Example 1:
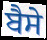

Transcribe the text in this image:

ਬੈਸੇ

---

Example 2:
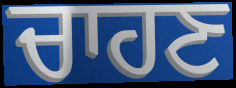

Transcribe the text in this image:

ਚਾਹਣ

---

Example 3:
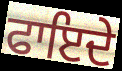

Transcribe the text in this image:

ਫਾਇਦੇ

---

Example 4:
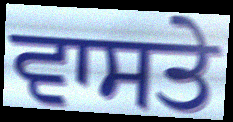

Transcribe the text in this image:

ਵਾਸਤੇ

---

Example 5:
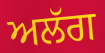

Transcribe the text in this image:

ਅਲੱਗ